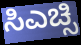
ಸಿಎಚ್ಸಿ